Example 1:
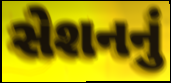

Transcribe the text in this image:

સેશનનું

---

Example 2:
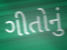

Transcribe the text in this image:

ગીતોનું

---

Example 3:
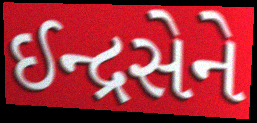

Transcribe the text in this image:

ઈન્દ્રસેને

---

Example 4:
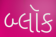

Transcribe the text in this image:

બ્લૉક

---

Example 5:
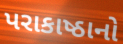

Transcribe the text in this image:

પરાકાષ્ઠાનો